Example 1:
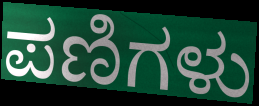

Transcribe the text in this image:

ಪಣಿಗಳು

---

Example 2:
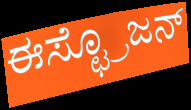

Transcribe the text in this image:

ಈಸ್ಟ್ರೊಜನ್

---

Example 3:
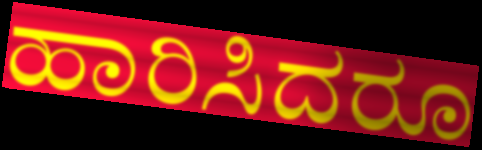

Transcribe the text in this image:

ಹಾರಿಸಿದರೂ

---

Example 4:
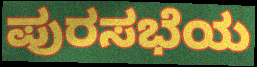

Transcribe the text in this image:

ಪುರಸಭೆಯ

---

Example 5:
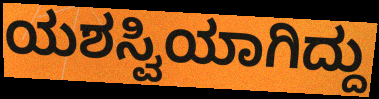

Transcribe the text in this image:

ಯಶಸ್ವಿಯಾಗಿದ್ದು